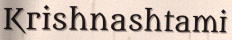
Krishnashtami